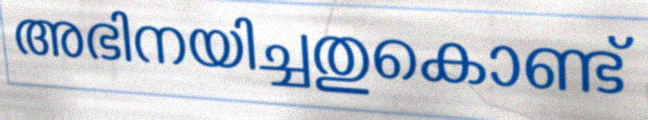
അഭിനയിച്ചതുകൊണ്ട്